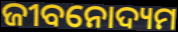
ଜୀବନୋଦ୍ୟମ